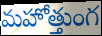
మహోత్తుంగ